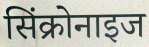
सिंक्रोनाइज